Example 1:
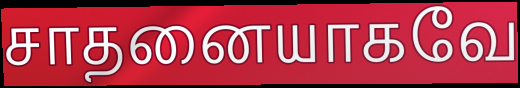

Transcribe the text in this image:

சாதனையாகவே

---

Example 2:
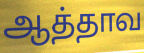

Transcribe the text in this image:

ஆத்தாவ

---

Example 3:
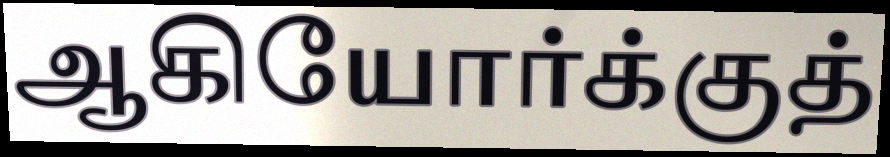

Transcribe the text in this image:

ஆகியோர்க்குத்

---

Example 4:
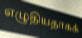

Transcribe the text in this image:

எழுதியதாகக்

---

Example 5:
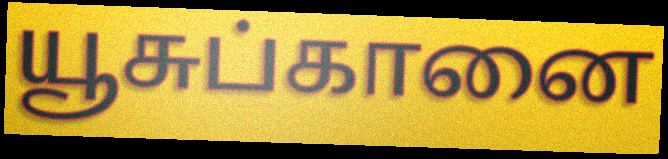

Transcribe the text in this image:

யூசுப்கானை